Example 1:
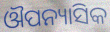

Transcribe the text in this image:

ଔପନ୍ୟାସିକ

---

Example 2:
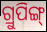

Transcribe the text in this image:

ଗ୍ରୁପିଙ୍ଗ୍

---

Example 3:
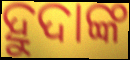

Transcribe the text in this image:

ହୁଦାଙ୍କ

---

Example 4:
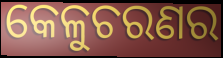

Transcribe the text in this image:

କେଳୁଚରଣର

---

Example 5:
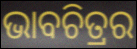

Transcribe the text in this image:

ଭାବଚିତ୍ରର